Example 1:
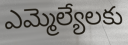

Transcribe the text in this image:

ఎమ్మెల్యేలకు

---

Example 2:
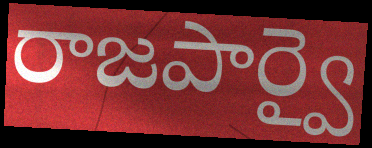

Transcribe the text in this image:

రాజపార్వై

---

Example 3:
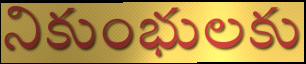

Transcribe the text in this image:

నికుంభులకు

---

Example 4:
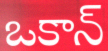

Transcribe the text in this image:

ఒకాన్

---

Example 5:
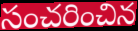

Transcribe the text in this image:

సంచరించిన